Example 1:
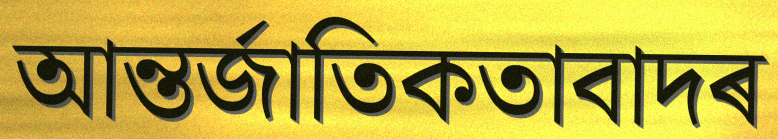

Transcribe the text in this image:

আন্তৰ্জাতিকতাবাদৰ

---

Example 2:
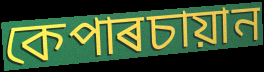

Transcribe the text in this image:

কেপাৰচায়ান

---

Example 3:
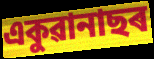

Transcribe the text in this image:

একুৱানাছৰ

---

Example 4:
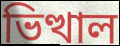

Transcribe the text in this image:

ভিত্থাল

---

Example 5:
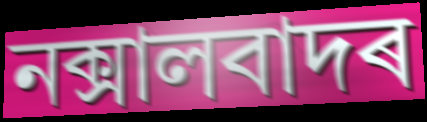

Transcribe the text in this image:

নক্সালবাদৰ